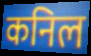
कनिल